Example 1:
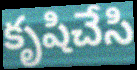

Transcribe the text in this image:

కృషిచేసి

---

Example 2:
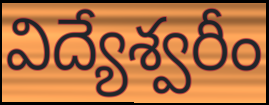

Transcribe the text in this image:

విద్యేశ్వరీం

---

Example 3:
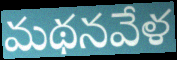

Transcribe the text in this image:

మథనవేళ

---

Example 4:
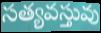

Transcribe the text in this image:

సత్యవస్తువు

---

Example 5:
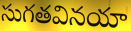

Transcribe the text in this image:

సుగతవినయా